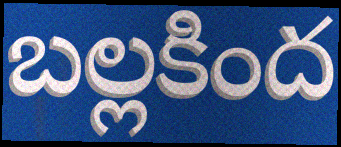
బల్లకింద